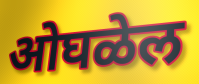
ओघळेल